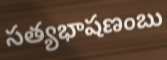
సత్యభాషణంబు